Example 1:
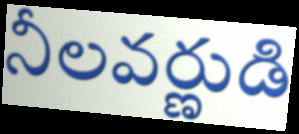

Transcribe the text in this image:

నీలవర్ణుడి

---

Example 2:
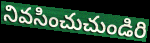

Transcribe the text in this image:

నివసించుచుండిరి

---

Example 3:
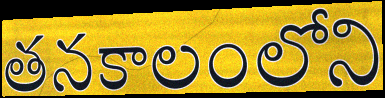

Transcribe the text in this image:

తనకాలంలోని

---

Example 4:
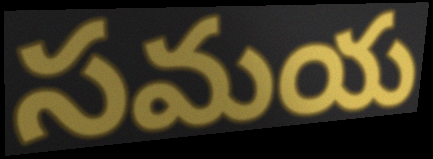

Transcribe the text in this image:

సమయ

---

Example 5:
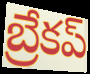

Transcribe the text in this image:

బ్రేకప్